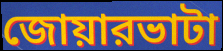
জোয়ারভাটা